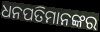
ଧନପତିମାନଙ୍କର